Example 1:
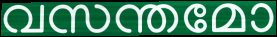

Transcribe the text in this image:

വസന്തമോ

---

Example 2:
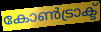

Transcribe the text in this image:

കോൺട്രാക്ട്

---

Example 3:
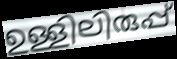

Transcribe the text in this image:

ഉള്ളിലിരുപ്പ്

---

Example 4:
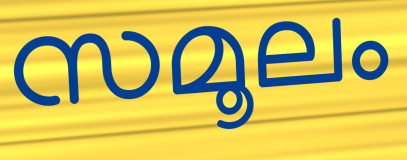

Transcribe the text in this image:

സമൂലം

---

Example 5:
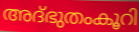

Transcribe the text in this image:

അദ്ഭുതംകൂറി